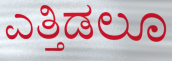
ಎತ್ತಿಡಲೂ